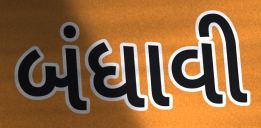
બંધાવી